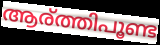
ആര്ത്തിപൂണ്ട